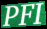
PFI